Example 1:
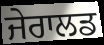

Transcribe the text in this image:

ਜੇਰਾਲਡ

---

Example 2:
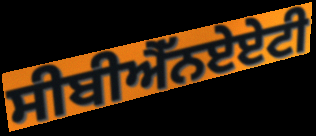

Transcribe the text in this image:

ਸੀਬੀਐੱਨਏਏਟੀ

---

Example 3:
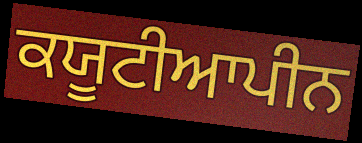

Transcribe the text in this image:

ਕਯੂਟੀਆਪੀਨ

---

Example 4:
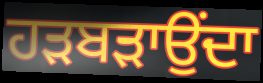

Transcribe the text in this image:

ਹੜਬੜਾਉਂਦਾ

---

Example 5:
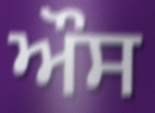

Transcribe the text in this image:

ਔਸ